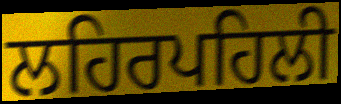
ਲਹਿਰਪਹਿਲੀ